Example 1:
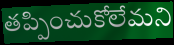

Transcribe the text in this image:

తప్పించుకోలేమని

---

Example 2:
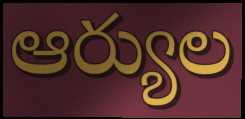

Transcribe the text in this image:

ఆర్యుల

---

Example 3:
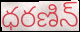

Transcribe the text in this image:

ధరణిన్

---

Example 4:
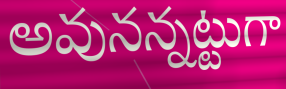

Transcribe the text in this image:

అవునన్నట్టుగా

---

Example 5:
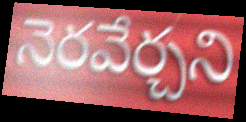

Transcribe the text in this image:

నెరవేర్చని